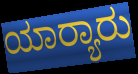
ಯಾರ‍್ಯಾರು